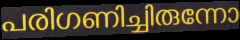
പരിഗണിച്ചിരുന്നോ